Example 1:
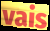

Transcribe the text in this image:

vais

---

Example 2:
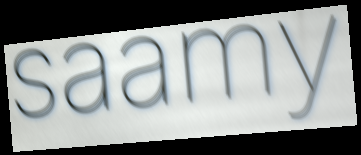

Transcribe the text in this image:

saamy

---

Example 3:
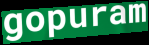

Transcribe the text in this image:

gopuram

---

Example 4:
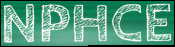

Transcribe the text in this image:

NPHCE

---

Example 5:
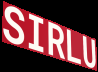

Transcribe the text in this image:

SIRLU